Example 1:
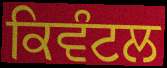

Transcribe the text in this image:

ਕਿਵੰਟਲ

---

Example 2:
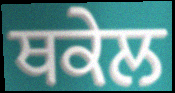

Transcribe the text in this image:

ਥਕੇਲ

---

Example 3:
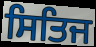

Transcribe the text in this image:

ਸਿਤਿਜ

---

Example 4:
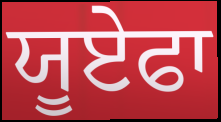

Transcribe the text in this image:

ਯੂਏਫਾ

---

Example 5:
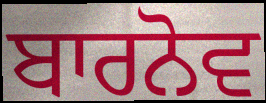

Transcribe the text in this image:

ਬਾਰਨੋਵ